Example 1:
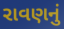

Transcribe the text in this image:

રાવણનું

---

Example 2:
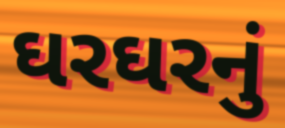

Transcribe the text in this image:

ઘરઘરનું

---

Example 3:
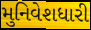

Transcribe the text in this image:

મુનિવેશધારી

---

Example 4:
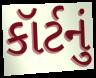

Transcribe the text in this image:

કૉર્ટનું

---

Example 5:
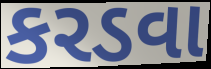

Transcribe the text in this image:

કરડવા